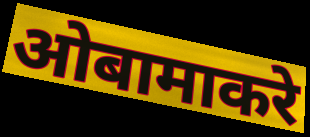
ओबामाकरे